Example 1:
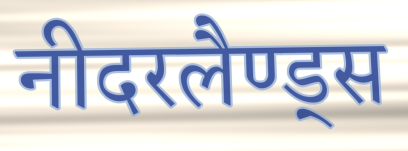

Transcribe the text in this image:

नीदरलैण्ड्स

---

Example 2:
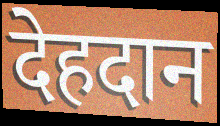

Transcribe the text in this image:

देहदान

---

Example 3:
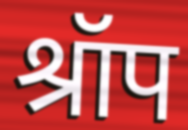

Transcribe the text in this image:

श्रॉप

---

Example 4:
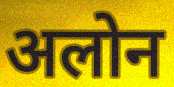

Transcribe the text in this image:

अलोन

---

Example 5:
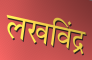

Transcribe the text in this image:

लखविंद्र